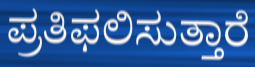
ಪ್ರತಿಫಲಿಸುತ್ತಾರೆ